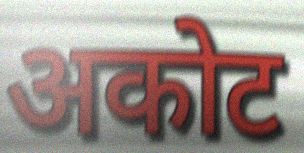
अकोट